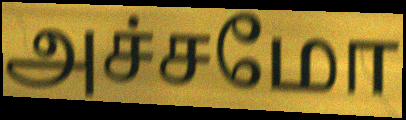
அச்சமோ